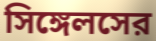
সিঙ্গেলসের